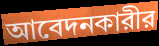
আবেদনকারীর